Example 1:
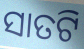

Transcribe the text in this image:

ସାତଟି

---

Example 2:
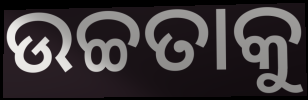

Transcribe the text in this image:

ଉଚ୍ଚତାକୁ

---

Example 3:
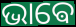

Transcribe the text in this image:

ଭାଵେ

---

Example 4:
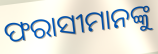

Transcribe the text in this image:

ଫରାସୀମାନଙ୍କୁ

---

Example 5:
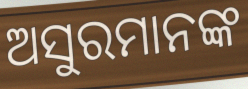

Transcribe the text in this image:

ଅସୁରମାନଙ୍କ